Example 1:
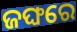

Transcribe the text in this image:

ଜଙ୍ଘରେ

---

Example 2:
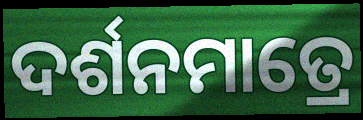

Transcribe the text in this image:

ଦର୍ଶନମାତ୍ରେ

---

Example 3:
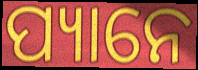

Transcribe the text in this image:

ପ୍ୟାନେ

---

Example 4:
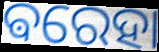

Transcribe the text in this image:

ଵରେହା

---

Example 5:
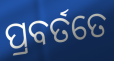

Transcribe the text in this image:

ପ୍ରବର୍ତତେ